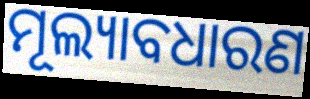
ମୂଲ୍ୟାବଧାରଣ